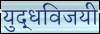
युद्धविजयी